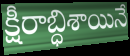
క్షీరాబ్ధిశాయినే